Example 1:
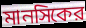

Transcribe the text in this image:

মানসিকের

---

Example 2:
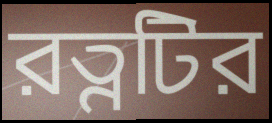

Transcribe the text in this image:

রত্নটির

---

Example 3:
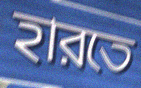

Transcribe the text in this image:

হারতে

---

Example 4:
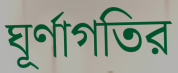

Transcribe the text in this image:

ঘূর্ণাগতির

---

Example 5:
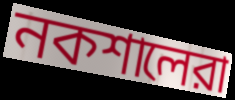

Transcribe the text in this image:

নকশালেরা